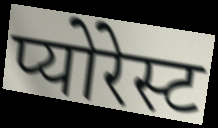
प्योरेस्ट